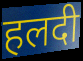
हलदी